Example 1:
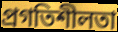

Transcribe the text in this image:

প্রগতিশীলতা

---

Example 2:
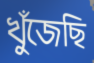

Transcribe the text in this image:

খুঁজেছি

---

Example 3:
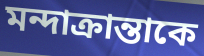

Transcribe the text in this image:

মন্দাক্রান্তাকে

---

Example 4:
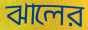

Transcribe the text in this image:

ঝালের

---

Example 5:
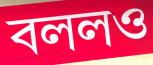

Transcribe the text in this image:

বললও